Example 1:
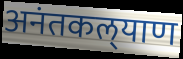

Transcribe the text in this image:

अनंतकल्याण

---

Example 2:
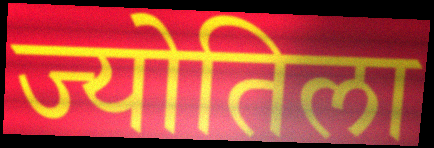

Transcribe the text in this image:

ज्योतिला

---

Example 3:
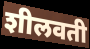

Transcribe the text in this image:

शीलवती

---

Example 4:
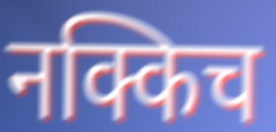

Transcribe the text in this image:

नक्किच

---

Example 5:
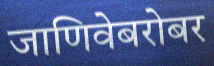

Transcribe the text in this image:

जाणिवेबरोबर